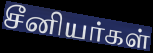
சீனியர்கள்